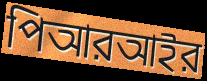
পিআরআইর